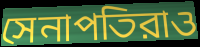
সেনাপতিরাও